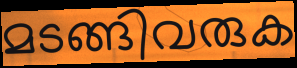
മടങ്ങിവരുക